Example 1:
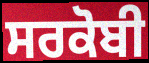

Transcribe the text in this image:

ਸਰਕੋਬੀ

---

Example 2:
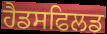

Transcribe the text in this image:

ਹੈਡਸਫਿਲਡ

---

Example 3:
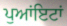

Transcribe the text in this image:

ਪੁਆਂਇਟਾਂ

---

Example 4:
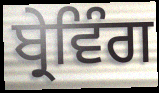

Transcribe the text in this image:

ਬ੍ਰੇਵਿੰਗ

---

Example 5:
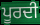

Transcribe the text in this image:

ਪੂਰਦੀ